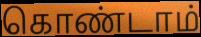
கொண்டாம்